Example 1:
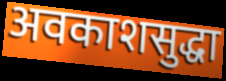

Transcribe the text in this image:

अवकाशसुद्धा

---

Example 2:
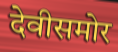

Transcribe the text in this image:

देवीसमोर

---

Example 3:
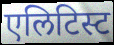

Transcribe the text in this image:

एलिटिस्ट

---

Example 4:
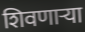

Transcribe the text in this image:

शिवणाऱ्या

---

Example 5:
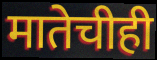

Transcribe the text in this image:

मातेचीही